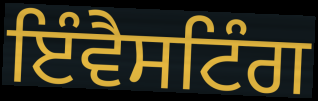
ਇੰਵੈਸਟਿੰਗ